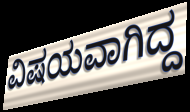
ವಿಷಯವಾಗಿದ್ದ